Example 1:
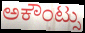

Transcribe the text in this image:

ಅಕೌಂಟ್ಸು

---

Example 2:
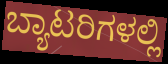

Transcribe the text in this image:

ಬ್ಯಾಟರಿಗಳಲ್ಲಿ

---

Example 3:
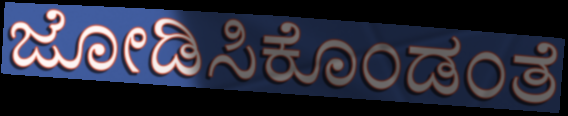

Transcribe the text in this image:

ಜೋಡಿಸಿಕೊಂಡಂತೆ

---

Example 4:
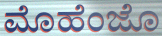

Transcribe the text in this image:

ಮೊಹೆಂಜೊ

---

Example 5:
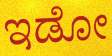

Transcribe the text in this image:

ಇಡೋ